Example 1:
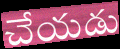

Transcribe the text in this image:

చేయడు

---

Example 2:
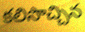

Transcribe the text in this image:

కలిసొచ్చిన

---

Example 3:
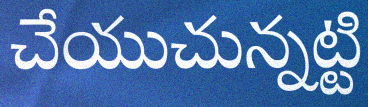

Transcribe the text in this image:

చేయుచున్నట్టి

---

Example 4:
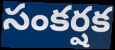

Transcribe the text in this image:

సంకర్షక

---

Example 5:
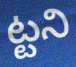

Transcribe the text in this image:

ట్టని